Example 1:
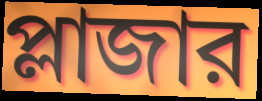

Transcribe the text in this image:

প্লাজার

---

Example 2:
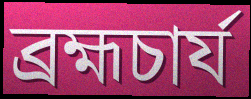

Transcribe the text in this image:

ব্রহ্মচার্য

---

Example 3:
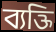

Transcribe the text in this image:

ব্যক্তি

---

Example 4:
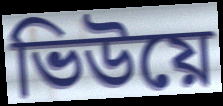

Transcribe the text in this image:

ভিউয়ে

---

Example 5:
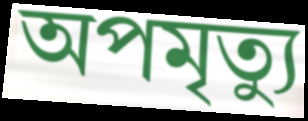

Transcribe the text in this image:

অপমৃত্যু